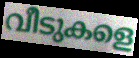
വീടുകളെ